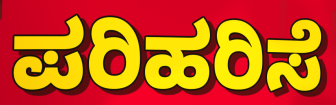
ಪರಿಹರಿಸೆ